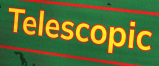
Telescopic